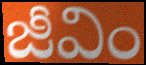
జీవిం